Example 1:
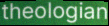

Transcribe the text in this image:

theologian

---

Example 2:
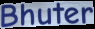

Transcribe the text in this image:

Bhuter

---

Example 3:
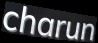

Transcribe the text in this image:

charun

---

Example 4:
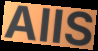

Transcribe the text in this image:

AIIS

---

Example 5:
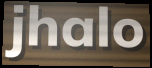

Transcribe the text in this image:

jhalo